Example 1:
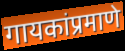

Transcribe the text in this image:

गायकांप्रमाणे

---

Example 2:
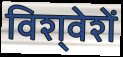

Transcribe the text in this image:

विश्वेशें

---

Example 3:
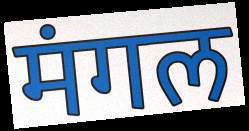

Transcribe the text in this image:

मंगल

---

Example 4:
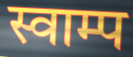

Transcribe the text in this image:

स्वाम्प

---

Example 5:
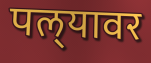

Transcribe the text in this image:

पल्यावर